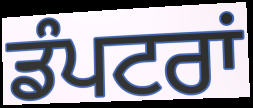
ਡੰਪਟਰਾਂ